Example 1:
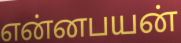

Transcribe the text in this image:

என்னபயன்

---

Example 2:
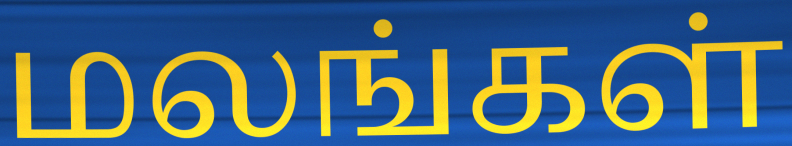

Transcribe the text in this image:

மலங்கள்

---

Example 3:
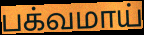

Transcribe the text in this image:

பக்வமாய்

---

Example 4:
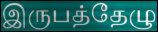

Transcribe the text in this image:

இருபத்தேழு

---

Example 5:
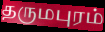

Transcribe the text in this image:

தருமபுரம்